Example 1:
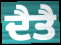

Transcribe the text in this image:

ਦੈਤੈ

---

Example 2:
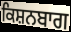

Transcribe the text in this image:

ਕਿਸ਼ਨਬਾਗ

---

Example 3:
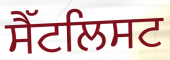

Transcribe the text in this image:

ਸੈੱਟਲਿਸਟ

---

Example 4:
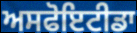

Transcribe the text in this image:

ਅਸਫੋਇਟੀਡਾ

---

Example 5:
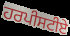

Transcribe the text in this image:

ਹਰਪੀਸਟੀਏ